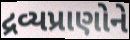
દ્રવ્યપ્રાણોને